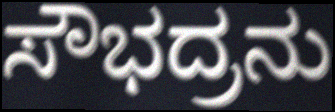
ಸೌಭದ್ರನು